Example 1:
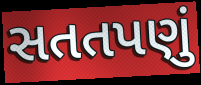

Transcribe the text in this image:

સતતપણું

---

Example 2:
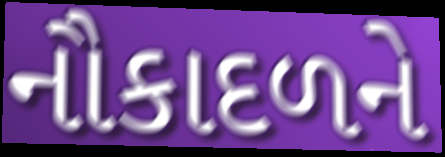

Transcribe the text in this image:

નૌકાદળને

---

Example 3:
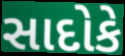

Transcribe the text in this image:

સાદોકે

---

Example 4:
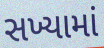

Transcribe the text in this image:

સખ્યામાં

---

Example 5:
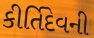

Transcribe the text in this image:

કીર્તિદેવની